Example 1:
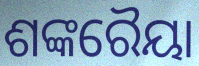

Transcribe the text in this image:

ଶଙ୍କରୈୟା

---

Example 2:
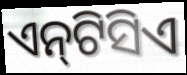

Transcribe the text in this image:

ଏନ୍‌ଟିସିଏ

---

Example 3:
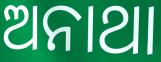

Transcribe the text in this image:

ଅନାଥା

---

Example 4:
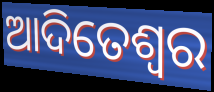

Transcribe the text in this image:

ଆଦିତେଶ୍ଵର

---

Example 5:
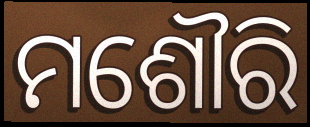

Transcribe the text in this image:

ମଶୌରି